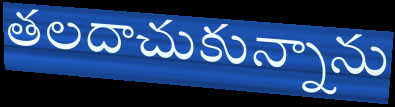
తలదాచుకున్నాను